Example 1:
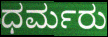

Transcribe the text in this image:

ಧರ್ಮರು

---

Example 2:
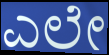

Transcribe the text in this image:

ಎಲೇ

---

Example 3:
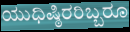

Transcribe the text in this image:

ಯುಧಿಷ್ಠಿರರಿಬ್ಬರೂ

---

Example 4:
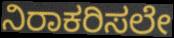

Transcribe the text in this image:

ನಿರಾಕರಿಸಲೇ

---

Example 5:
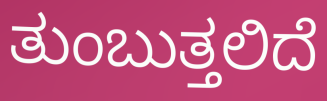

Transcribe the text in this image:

ತುಂಬುತ್ತಲಿದೆ